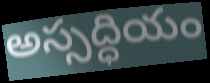
అస్సద్ధియం